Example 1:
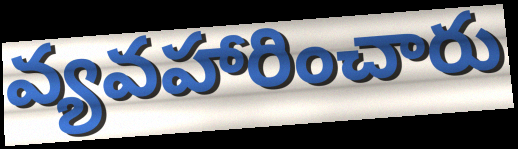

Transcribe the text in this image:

వ్యవహారించారు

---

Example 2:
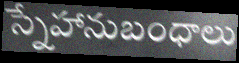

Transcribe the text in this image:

స్నేహానుబంధాలు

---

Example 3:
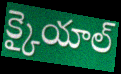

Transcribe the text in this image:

క్కైయాల్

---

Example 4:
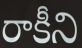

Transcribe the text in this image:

రాకీని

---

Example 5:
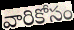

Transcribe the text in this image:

వారికోసం